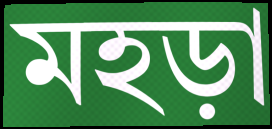
মহড়া